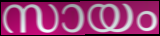
സായം